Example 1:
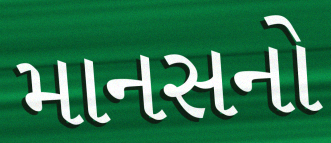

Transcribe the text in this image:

માનસનો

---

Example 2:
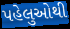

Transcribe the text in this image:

પહેલુઓથી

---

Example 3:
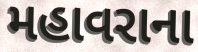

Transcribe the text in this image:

મહાવરાના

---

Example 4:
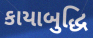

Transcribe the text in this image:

કાયાબુદ્ધિ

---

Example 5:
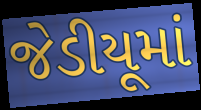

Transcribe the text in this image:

જેડીયૂમાં